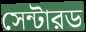
সেন্টারড